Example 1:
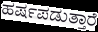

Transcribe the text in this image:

ಹರ್ಷಪಡುತ್ತಾರೆ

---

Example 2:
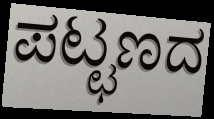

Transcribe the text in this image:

ಪಟ್ಟಣದ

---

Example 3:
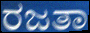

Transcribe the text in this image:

ರಜತಾ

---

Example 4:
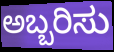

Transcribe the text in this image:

ಅಬ್ಬರಿಸು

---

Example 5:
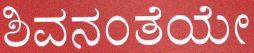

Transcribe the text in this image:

ಶಿವನಂತೆಯೇ